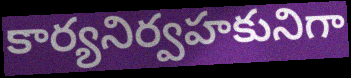
కార్యనిర్వహకునిగా